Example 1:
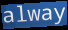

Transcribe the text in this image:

alway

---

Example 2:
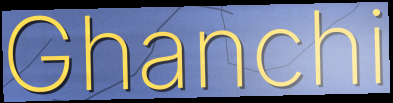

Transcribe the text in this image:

Ghanchi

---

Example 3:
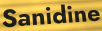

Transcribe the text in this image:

Sanidine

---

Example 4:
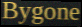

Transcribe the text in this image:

Bygone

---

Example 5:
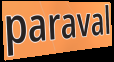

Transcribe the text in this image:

paraval